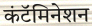
कंटॅमिनेशन